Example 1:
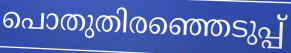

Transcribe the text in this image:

പൊതുതിരഞ്ഞെടുപ്പ്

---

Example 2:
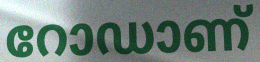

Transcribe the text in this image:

റോഡാണ്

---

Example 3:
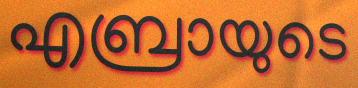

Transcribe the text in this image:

എബ്രായുടെ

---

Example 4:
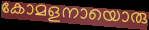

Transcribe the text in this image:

കോമളനായൊരു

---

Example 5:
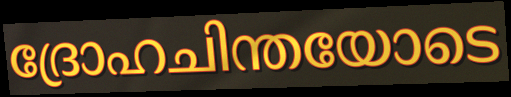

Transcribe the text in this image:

ദ്രോഹചിന്തയോടെ